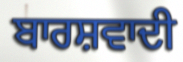
ਬਾਰਸ਼ਵਾਦੀ